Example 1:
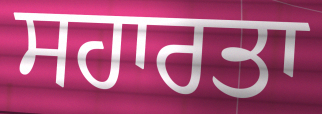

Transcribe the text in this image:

ਸਹਾਰਤਾ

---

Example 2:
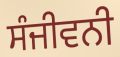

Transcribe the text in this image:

ਸੰਜੀਵਨੀ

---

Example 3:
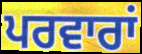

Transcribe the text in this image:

ਪਰਵਾਰਾਂ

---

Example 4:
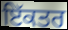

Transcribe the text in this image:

ਇੱਕਤਰ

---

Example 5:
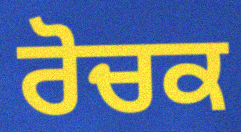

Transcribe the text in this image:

ਰੋਚਕ